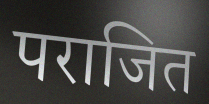
पराजित